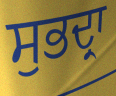
ਸੁਭਦ੍ਰਾ